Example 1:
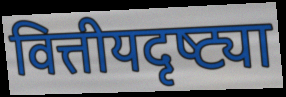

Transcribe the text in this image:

वित्तीयदृष्ट्या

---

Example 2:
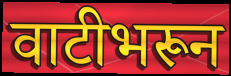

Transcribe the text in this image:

वाटीभरून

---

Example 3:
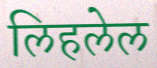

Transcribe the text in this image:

लिहलेल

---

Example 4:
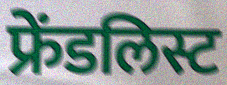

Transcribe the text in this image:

फ्रेंडलिस्ट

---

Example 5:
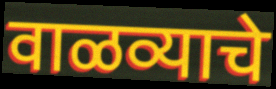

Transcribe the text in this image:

वाळव्याचे